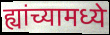
ह्यांच्यामध्ये